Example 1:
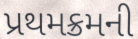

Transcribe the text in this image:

પ્રથમક્રમની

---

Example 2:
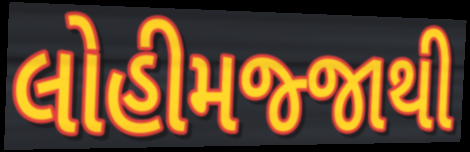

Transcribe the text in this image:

લોહીમજ્જાથી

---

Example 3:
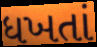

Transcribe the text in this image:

ધખતાં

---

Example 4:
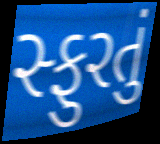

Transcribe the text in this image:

સ્ફુરતું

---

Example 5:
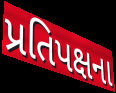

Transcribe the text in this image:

પ્રતિપક્ષના